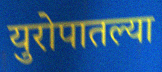
युरोपातल्या